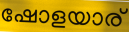
ഷോളയാര്